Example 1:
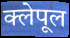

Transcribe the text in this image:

क्लेपूल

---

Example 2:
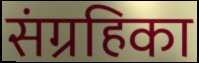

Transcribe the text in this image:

संग्रहिका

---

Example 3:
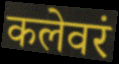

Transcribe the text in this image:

कलेवरं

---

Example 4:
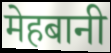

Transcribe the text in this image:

मेहबानी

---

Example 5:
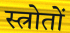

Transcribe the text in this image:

स्त्रोतों